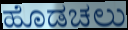
ಹೊಡಚಲು